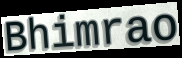
Bhimrao